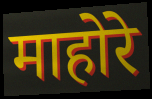
माहोरे